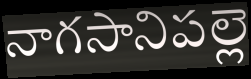
నాగసానిపల్లె